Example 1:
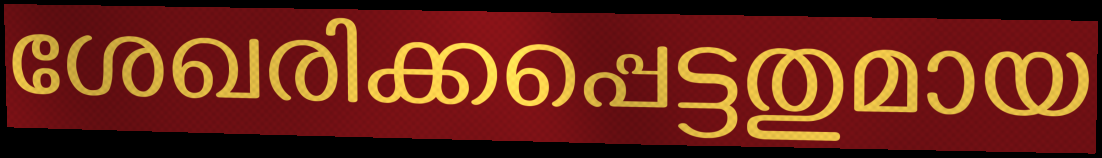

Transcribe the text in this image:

ശേഖരിക്കപ്പെട്ടതുമായ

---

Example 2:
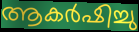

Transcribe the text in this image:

ആകർഷിച്ചു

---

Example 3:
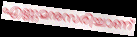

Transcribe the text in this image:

എണ്ണമനുസരിച്ചാണ്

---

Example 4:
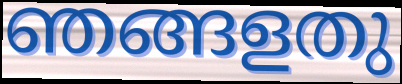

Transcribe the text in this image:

ഞങ്ങളതു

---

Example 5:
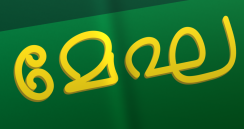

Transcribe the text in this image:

മേഘ